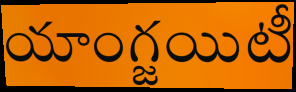
యాంగ్జయిటీ